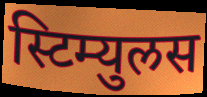
स्टिम्युलस